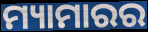
ମ୍ୟାମାରର